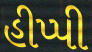
હીપ્પી